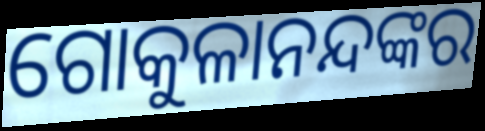
ଗୋକୁଳାନନ୍ଦଙ୍କର